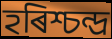
হৰিশ্চন্দ্ৰ